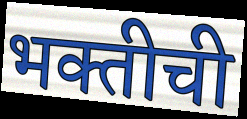
भक्‍तीची